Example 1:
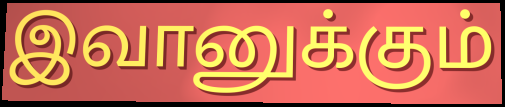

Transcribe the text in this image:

இவானுக்கும்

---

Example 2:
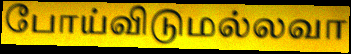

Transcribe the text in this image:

போய்விடுமல்லவா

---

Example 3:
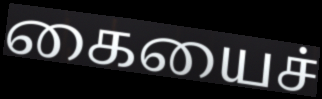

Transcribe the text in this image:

கையைச்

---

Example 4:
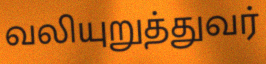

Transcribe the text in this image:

வலியுறுத்துவர்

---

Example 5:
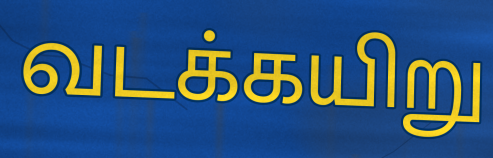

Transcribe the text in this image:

வடக்கயிறு